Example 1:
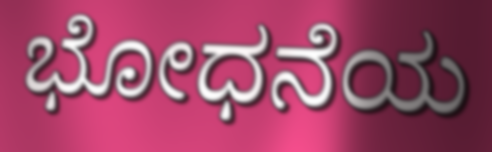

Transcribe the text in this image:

ಭೋಧನೆಯ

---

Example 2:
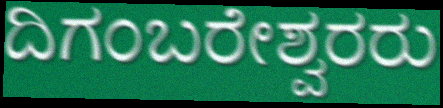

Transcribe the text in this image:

ದಿಗಂಬರೇಶ್ವರರು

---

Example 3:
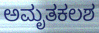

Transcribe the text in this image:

ಅಮೃತಕಲಶ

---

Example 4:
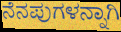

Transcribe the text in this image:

ನೆನಪುಗಳನ್ನಾಗಿ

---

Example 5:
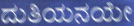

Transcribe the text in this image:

ದುತಿಯನಯೇ